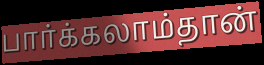
பார்க்கலாம்தான்